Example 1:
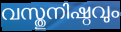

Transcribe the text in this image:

വസ്തുനിഷ്ഠവും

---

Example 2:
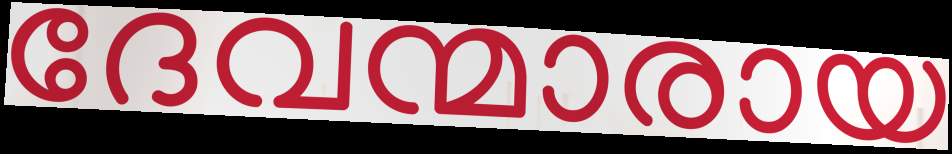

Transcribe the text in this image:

ദേവന്മാരായ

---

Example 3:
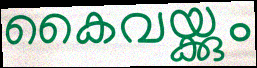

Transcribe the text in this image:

കൈവയ്ക്കും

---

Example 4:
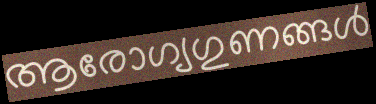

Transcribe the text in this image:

ആരോഗ്യഗുണങ്ങൾ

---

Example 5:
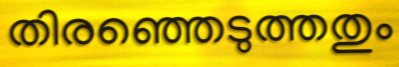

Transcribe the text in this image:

തിരഞ്ഞെടുത്തതും